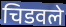
चिडवले